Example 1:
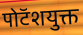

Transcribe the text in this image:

पोटॅशयुक्त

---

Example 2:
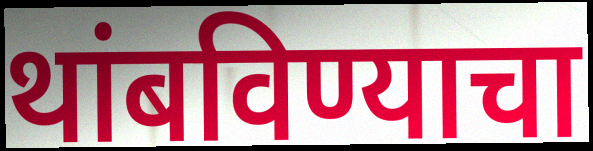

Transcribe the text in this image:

थांबविण्याचा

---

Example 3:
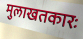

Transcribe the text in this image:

मुलाखतकारः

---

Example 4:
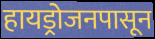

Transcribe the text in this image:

हायड्रोजनपासून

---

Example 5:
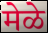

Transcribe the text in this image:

मेळे